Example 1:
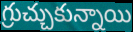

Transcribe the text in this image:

గ్రుచ్చుకున్నాయి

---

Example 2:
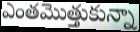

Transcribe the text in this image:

ఎంతమొత్తుకున్నా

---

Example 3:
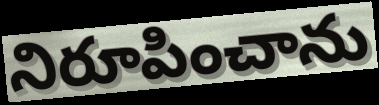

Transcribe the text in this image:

నిరూపించాను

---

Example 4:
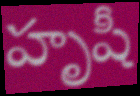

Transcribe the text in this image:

హృషీ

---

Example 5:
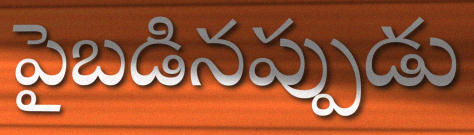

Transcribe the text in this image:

పైబడినప్పుడు